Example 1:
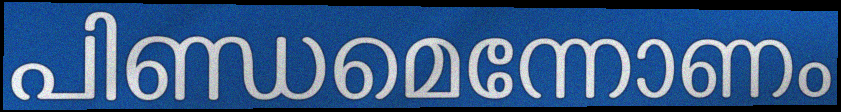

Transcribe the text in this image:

പിണ്ഡമെന്നോണം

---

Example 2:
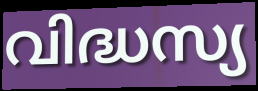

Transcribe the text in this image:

വിദ്ധസ്യ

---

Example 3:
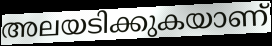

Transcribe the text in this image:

അലയടിക്കുകയാണ്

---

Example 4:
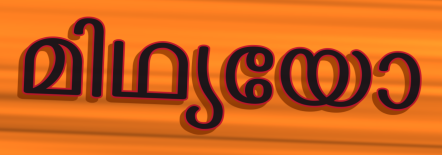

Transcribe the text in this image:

മിഥ്യയോ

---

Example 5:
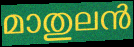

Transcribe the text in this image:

മാതുലൻ